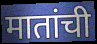
मातांची